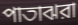
পাতাঝরা